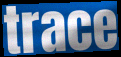
trace